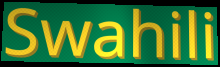
Swahili